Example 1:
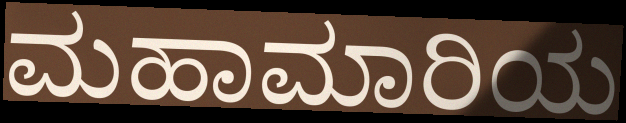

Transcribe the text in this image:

ಮಹಾಮಾರಿಯ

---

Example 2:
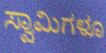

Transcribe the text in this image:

ಸ್ವಾಮಿಗಳೂ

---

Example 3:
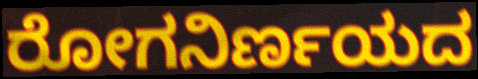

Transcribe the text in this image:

ರೋಗನಿರ್ಣಯದ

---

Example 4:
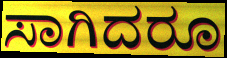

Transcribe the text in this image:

ಸಾಗಿದರೂ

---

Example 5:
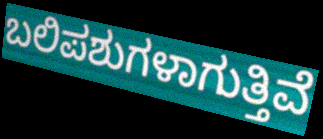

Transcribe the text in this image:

ಬಲಿಪಶುಗಳಾಗುತ್ತಿವೆ